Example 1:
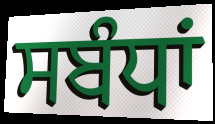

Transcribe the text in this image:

ਸਬੰਧਾਂ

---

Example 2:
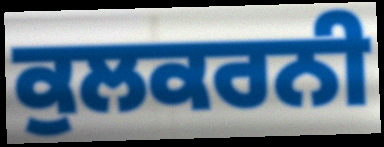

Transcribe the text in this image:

ਕੁਲਕਰਨੀ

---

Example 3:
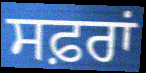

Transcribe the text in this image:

ਸਫ਼ਰਾਂ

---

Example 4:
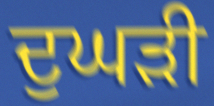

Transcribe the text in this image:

ਦੁਘੜੀ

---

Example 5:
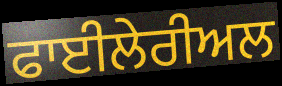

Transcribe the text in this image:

ਫਾਈਲੇਰੀਅਲ